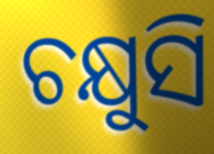
ଚକ୍ଷୁସି